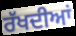
ਰੱਖਦੀਆਂ